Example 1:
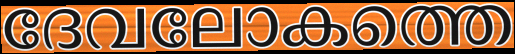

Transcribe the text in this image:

ദേവലോകത്തെ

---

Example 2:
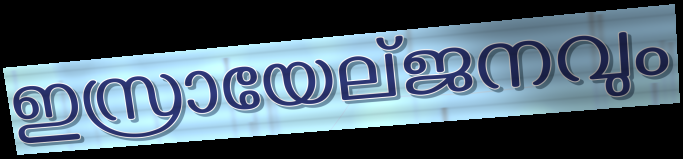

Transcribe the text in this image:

ഇസ്രായേല്ജനവും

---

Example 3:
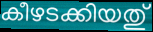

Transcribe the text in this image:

കീഴടക്കിയതു്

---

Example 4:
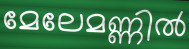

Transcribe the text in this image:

മേലേമണ്ണിൽ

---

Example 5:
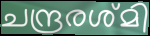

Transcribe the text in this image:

ചന്ദ്രരശ്മി